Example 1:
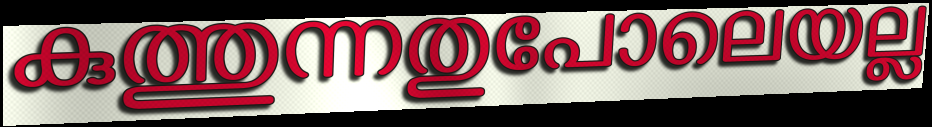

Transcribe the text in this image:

കുത്തുന്നതുപോലെയല്ല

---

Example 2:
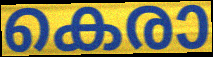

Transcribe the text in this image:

കെരാ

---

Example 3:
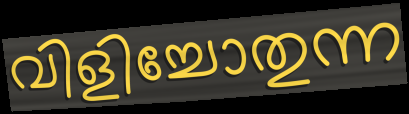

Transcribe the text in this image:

വിളിച്ചോതുന്ന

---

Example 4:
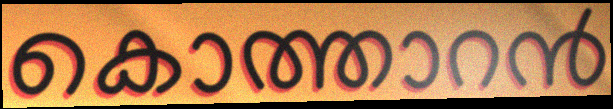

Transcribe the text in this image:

കൊത്താറൻ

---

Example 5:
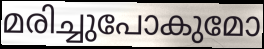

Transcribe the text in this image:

മരിച്ചുപോകുമോ